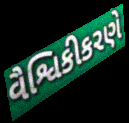
વૈશ્વિકીકરણે